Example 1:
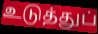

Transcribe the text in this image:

உடுத்துப்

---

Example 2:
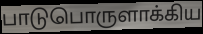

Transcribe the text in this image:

பாடுபொருளாக்கிய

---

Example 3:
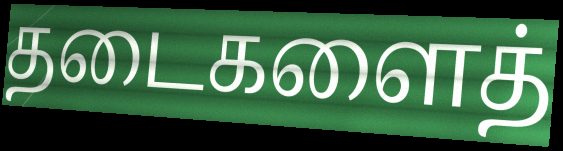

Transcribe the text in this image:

தடைகளைத்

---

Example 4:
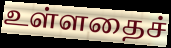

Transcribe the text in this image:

உள்ளதைச்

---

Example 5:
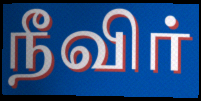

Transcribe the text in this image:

நீவிர்